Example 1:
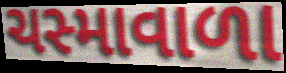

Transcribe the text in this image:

ચસ્માવાળા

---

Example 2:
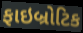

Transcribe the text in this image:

ફાઇબ્રોટિક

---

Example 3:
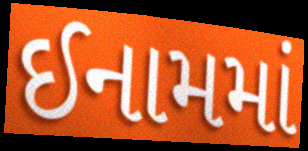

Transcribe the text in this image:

ઈનામમાં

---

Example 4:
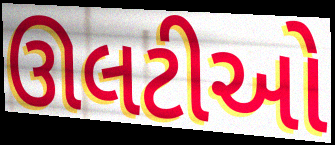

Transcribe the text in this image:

ઊલટીઓ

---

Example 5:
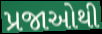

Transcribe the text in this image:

પ્રજાઓથી